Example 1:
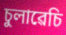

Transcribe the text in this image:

চুলাৱেচি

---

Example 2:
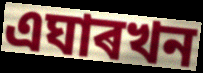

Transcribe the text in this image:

এঘাৰখন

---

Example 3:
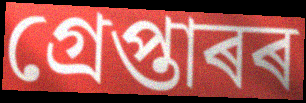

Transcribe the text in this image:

গ্ৰেপ্তাৰৰ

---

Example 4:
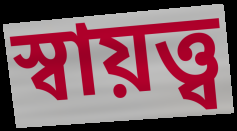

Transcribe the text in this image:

স্বায়ত্ত্ব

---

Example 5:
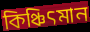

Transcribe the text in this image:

কিঞ্চিৎমান